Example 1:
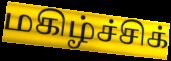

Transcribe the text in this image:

மகிழ்ச்சிக்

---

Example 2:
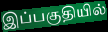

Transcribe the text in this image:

இப்பகுதியில்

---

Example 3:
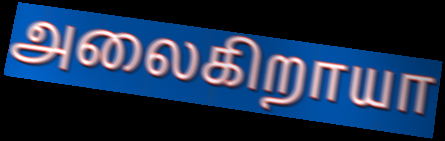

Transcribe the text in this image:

அலைகிறாயா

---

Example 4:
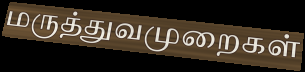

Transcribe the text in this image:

மருத்துவமுறைகள்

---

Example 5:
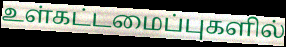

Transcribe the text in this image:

உள்கட்டமைப்புகளில்